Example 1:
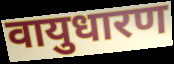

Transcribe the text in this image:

वायुधारण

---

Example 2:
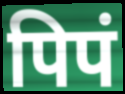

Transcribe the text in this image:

पिपं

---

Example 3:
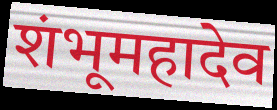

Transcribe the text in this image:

शंभूमहादेव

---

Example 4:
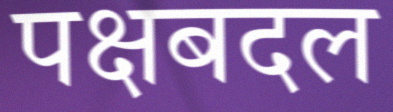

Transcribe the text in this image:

पक्षबदल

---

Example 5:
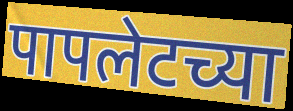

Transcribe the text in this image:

पापलेटच्या